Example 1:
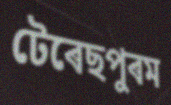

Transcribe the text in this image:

টেৰেছপুৰম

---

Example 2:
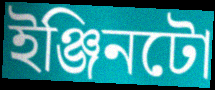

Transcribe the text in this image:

ইঞ্জিনটো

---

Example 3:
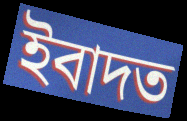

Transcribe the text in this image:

ইবাদত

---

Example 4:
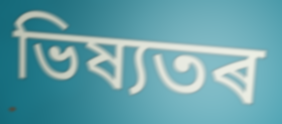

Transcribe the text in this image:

ভিষ্যতৰ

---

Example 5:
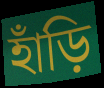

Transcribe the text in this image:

হাঁড়ি